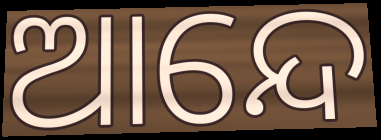
ଆନ୍ଦେ